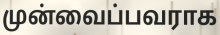
முன்வைப்பவராக